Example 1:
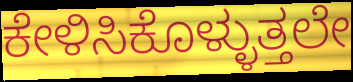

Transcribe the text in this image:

ಕೇಳಿಸಿಕೊಳ್ಳುತ್ತಲೇ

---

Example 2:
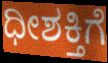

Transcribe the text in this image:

ಧೀಶಕ್ತಿಗೆ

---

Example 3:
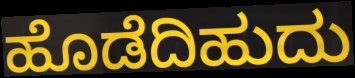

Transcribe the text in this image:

ಹೊಡೆದಿಹುದು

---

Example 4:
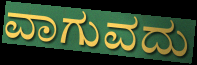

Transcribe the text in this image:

ವಾಗುವದು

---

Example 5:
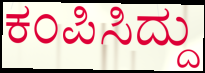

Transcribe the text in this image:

ಕಂಪಿಸಿದ್ದು